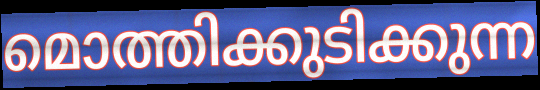
മൊത്തിക്കുടിക്കുന്ന